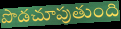
పొడచూపుతుంది